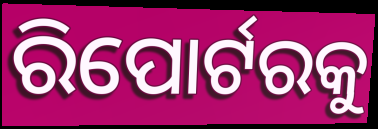
ରିପୋର୍ଟରକୁ